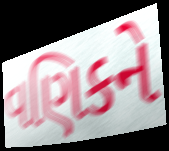
વણિકને